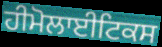
ਹੀਮੋਲਾਈਟਿਕਸ